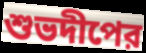
শুভদীপের